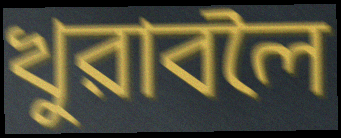
খুৱাবলৈ